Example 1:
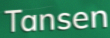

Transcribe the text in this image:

Tansen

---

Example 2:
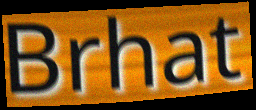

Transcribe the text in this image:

Brhat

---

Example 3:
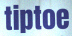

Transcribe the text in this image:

tiptoe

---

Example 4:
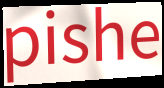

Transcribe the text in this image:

pishe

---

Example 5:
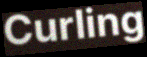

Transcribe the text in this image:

Curling